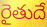
రైతుదే